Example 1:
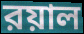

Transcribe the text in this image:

রয়াল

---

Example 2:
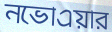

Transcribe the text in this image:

নভোএয়ার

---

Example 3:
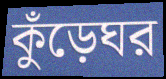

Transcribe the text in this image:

কুঁড়েঘর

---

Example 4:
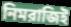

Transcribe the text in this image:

নিমরাজিই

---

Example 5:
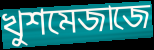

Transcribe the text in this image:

খুশমেজাজে